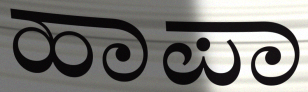
ಹಾಪಾ